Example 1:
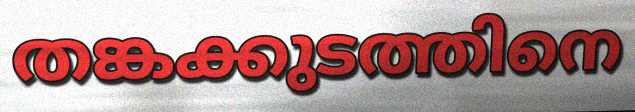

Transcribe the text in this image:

തങ്കക്കുടത്തിനെ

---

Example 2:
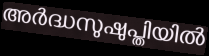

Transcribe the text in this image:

അർദ്ധസുഷുപ്തിയിൽ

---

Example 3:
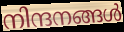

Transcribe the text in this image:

നിന്ദനങ്ങൾ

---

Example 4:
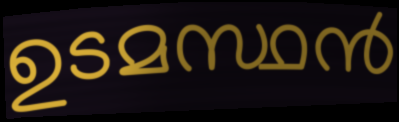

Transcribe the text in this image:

ഉടമസ്ഥൻ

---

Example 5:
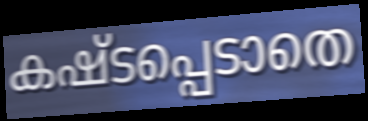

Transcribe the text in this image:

കഷ്ടപ്പെടാതെ